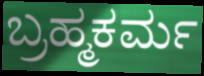
ಬ್ರಹ್ಮಕರ್ಮ